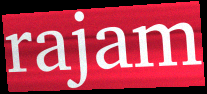
rajam